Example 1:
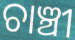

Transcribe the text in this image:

ଚାଞ୍ଚୀ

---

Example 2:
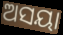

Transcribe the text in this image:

ଅସୟା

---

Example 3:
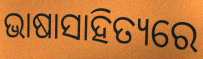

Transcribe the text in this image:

ଭାଷାସାହିତ୍ୟରେ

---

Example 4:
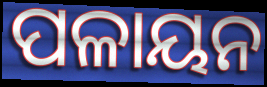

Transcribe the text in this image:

ପଳାୟନ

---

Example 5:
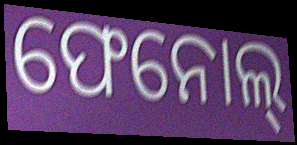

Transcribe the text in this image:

ଫେନୋଲ୍